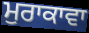
ਮੁਰਾਕਾਵਾ